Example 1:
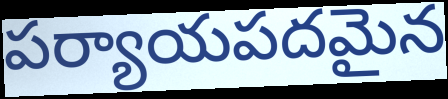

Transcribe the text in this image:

పర్యాయపదమైన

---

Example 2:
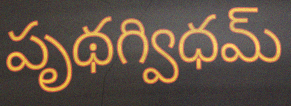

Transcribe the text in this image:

పృథగ్విధమ్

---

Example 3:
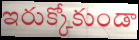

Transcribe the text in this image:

ఇరుక్కోకుండా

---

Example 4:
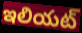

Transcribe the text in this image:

ఇలియట్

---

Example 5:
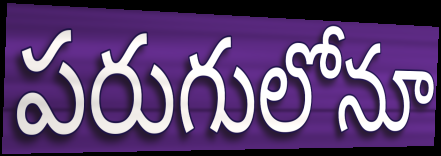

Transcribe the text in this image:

పరుగులోనూ